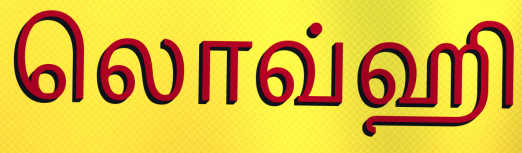
லொவ்ஹி